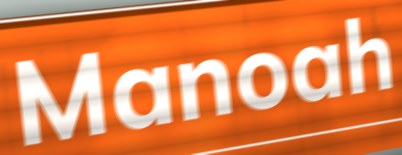
Manoah